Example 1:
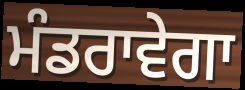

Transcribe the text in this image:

ਮੰਡਰਾਵੇਗਾ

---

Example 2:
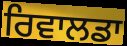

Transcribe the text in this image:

ਰਿਵਾਲਡਾ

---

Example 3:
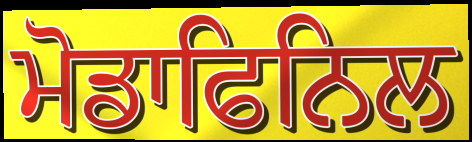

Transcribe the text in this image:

ਮੋਡਾਫਿਨਿਲ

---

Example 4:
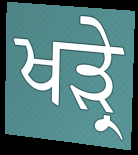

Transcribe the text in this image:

ਖੜ੍ਰੇ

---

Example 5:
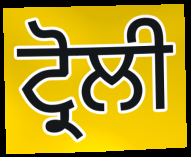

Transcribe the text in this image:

ਟ੍ਰੋਲੀ